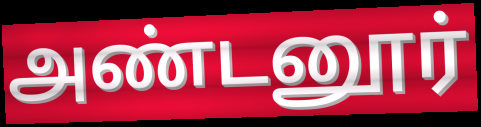
அண்டனூர்